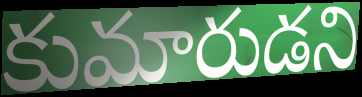
కుమారుడని